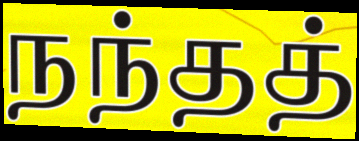
நந்தத்